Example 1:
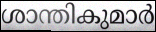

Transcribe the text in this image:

ശാന്തികുമാർ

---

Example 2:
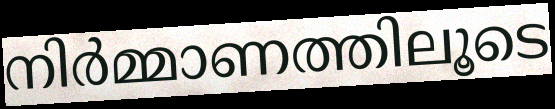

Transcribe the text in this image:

നിർമ്മാണത്തിലൂടെ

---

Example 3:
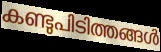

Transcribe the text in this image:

കണ്ടുപിടിത്തങ്ങൾ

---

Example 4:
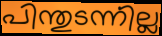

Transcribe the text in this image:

പിന്തുടൎന്നില്ല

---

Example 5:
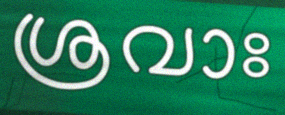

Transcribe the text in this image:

ശ്രവാഃ